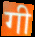
गी